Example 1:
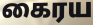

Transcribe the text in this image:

கைரய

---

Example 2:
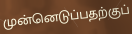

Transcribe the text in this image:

முன்னெடுப்பதற்குப்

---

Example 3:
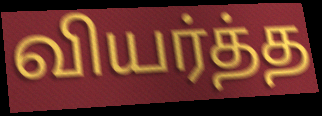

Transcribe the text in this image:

வியர்த்த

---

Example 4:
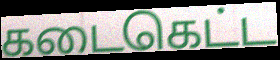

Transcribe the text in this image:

கடைகெட்ட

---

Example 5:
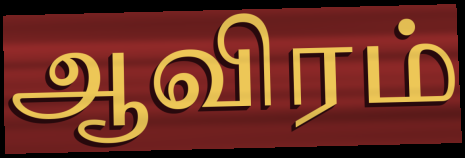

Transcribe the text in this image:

ஆவிரம்